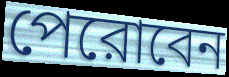
পেরোবেন